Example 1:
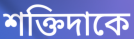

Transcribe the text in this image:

শক্তিদাকে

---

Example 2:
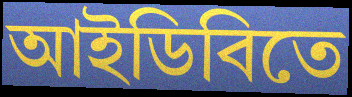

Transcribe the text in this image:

আইডিবিতে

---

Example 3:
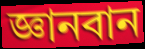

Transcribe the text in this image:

জ্ঞানবান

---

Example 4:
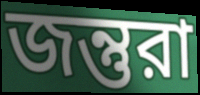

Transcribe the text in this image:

জন্তুরা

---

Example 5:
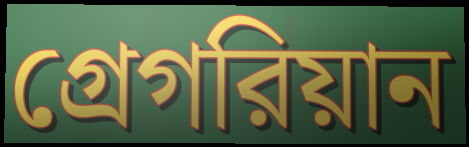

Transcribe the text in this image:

গ্রেগরিয়ান